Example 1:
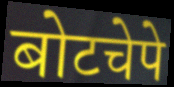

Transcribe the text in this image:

बोटचेपे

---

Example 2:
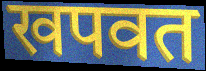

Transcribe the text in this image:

खपवत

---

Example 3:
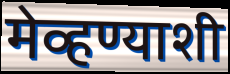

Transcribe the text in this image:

मेव्हण्याशी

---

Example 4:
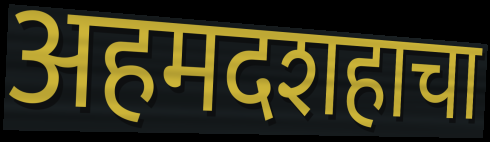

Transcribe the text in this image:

अहमदशहाचा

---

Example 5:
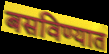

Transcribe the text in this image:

बसविण्यात